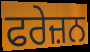
ਫਰੇਜ਼ਨ